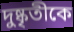
দুষ্কৃতীকে